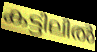
കട്ടിലിൽ